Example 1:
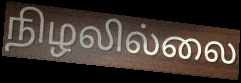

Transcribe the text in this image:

நிழலில்லை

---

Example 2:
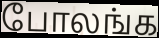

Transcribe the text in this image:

போலங்க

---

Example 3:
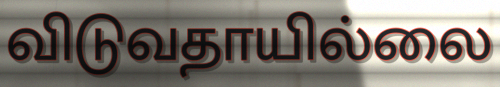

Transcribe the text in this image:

விடுவதாயில்லை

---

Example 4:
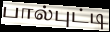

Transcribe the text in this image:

பால்புட்டி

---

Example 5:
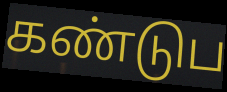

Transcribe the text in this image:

கண்டுப